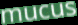
mucus